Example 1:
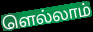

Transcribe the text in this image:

ளெல்லாம்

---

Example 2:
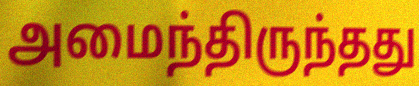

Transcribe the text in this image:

அமைந்திருந்தது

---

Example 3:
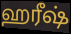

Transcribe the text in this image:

ஹரீஷ்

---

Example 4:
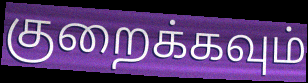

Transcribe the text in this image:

குறைக்கவும்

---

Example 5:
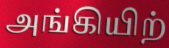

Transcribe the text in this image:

அங்கியிற்